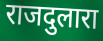
राजदुलारा